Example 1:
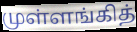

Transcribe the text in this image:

முள்ளங்கித்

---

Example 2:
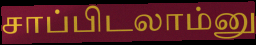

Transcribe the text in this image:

சாப்பிடலாம்னு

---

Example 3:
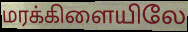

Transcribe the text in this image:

மரக்கிளையிலே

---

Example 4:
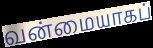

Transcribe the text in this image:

வன்மையாகப்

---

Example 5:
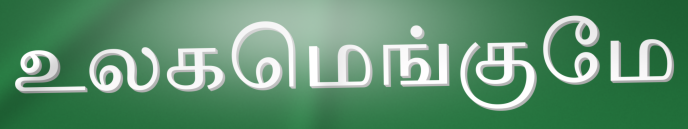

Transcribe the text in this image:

உலகமெங்குமே